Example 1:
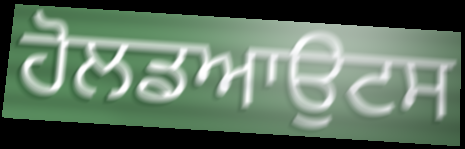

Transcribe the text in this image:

ਹੋਲਡਆਉਟਸ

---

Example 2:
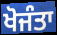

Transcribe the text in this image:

ਖੋਜੰਤਾ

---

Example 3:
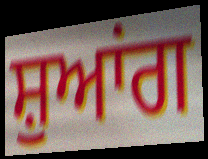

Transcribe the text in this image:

ਸ਼ੁਆਂਗ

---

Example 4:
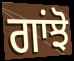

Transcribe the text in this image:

ਗਾਂਝੋ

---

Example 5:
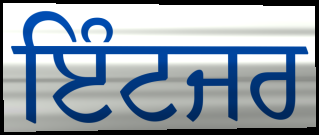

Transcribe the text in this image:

ਇੰਟਜਰ